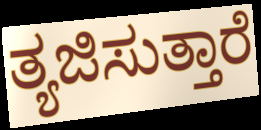
ತ್ಯಜಿಸುತ್ತಾರೆ